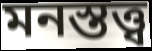
মনস্তত্ত্ব